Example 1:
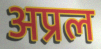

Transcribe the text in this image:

अप्रल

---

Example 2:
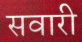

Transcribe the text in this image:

सवारी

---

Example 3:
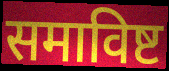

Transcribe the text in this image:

समाविष्ट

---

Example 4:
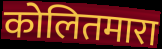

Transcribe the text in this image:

कोलितमारा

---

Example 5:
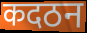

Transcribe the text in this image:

कदठन